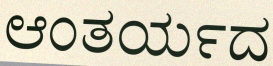
ಆಂತರ್ಯದ